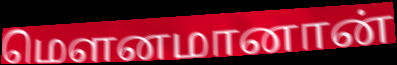
மௌனமானான்